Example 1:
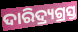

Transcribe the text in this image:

ଦାରିଦ୍ର୍ୟଗ୍ରସ୍ତ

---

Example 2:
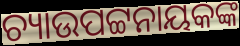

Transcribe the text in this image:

ଚ୍ୟାଉପଟ୍ଟନାୟକଙ୍କ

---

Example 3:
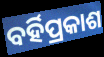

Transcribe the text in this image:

ବର୍ହିପ୍ରକାଶ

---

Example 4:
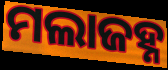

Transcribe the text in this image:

ମଲାଜହ୍ନ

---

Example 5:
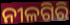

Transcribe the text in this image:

ନୀଳଗିରି